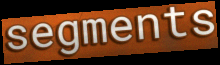
segments